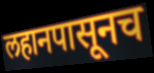
लहानपासूनच